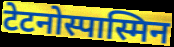
टेटनोस्पास्मिन